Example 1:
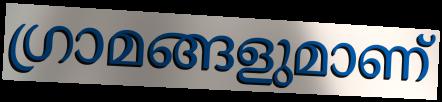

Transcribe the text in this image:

ഗ്രാമങ്ങളുമാണ്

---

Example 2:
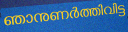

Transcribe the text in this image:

ഞാനുണർത്തിവിട്ട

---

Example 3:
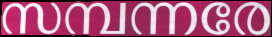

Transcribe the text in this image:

സമ്പന്നരേ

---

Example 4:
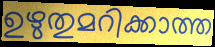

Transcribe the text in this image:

ഉഴുതുമറിക്കാത്ത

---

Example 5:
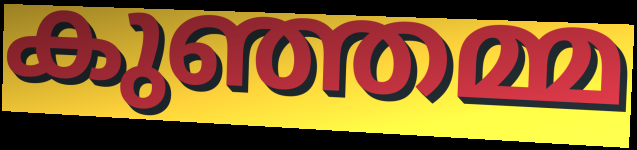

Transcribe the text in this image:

കുഞ്ഞമ്മ